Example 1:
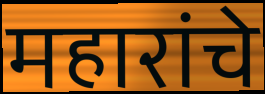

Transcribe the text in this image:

महारांचे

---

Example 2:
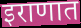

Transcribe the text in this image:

इराणात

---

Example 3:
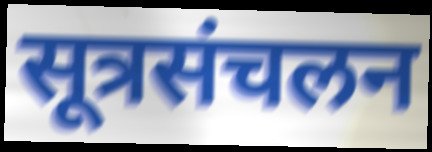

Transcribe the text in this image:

सूत्रसंचलन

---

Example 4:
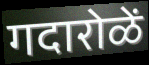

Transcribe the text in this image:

गदारोळें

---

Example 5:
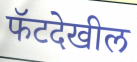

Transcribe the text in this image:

फॅटदेखील